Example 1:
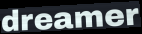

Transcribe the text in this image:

dreamer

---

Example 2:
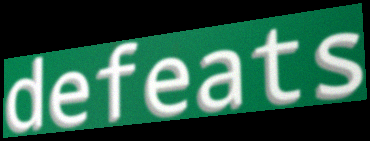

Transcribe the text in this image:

defeats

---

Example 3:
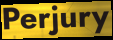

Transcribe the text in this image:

Perjury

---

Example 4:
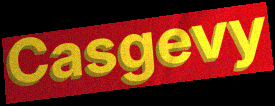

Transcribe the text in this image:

Casgevy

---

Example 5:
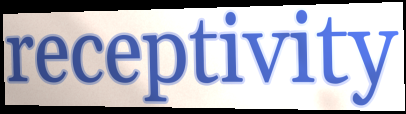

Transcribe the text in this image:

receptivity